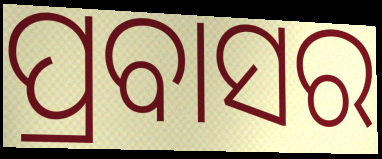
ପ୍ରବାସର